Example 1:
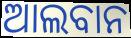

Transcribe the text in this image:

ଆଲବାନ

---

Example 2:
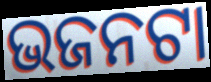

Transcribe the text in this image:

ଭଜନଟା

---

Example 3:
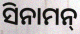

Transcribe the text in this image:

ସିନାମନ୍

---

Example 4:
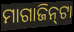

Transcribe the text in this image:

ମାଗାଜିନ୍‌ଟା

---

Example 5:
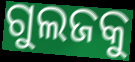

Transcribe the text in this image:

ଗୁଲଜକୁ